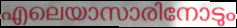
എലെയാസാരിനോടും